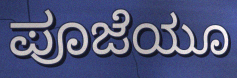
ಪೂಜೆಯೂ